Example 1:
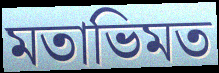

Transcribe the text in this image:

মতাভিমত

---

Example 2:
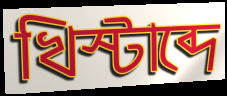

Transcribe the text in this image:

খিস্টাব্দে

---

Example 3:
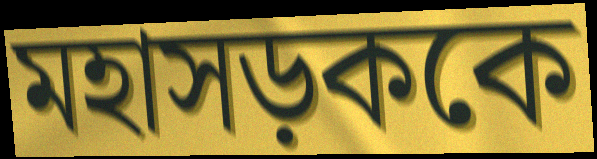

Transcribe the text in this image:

মহাসড়ককে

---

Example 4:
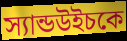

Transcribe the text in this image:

স্যান্ডউইচকে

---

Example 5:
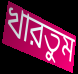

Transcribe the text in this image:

খারতুম